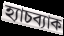
হ্যাচব্যাক